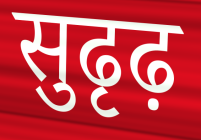
सुढृढ़